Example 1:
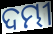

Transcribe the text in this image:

ଦମ୍ଭୀ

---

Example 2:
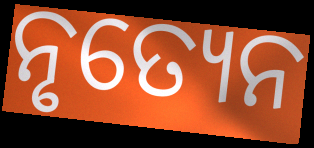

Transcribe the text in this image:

ନୃତ୍ୟେନ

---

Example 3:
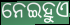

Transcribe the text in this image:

ନେଇହୁଏ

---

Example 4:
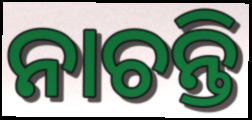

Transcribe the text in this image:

ନାଚନ୍ତି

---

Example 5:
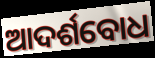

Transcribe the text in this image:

ଆଦର୍ଶବୋଧ